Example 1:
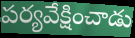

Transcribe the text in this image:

పర్యవేక్షించాడు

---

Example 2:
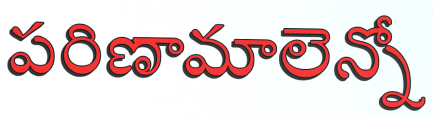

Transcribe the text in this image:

పరిణామాలెన్నో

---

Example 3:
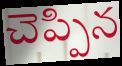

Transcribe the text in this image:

చెప్పిన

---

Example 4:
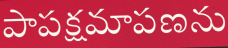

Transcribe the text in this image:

పాపక్షమాపణను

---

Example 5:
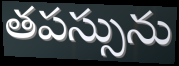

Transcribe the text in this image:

తపస్సును